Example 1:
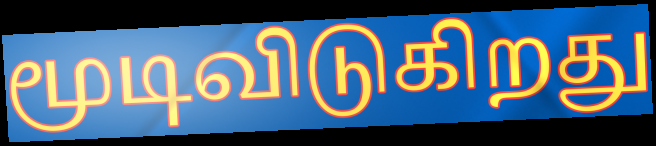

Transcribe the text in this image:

மூடிவிடுகிறது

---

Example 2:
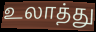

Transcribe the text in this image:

உலாத்து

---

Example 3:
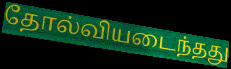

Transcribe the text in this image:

தோல்வியடைந்தது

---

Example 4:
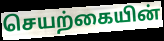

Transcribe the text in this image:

செயற்கையின்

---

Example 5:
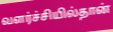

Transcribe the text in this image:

வளர்ச்சியில்தான்